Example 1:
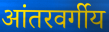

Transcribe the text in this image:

आंतरवर्गीय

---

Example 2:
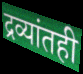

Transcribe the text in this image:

द्रव्यांतही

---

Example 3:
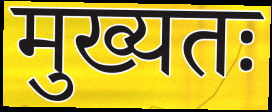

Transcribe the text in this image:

मुख्यतः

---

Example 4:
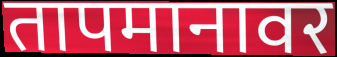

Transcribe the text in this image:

तापमानावर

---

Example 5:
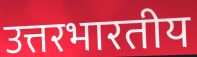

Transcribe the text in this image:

उत्तरभारतीय